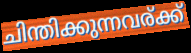
ചിന്തിക്കുന്നവര്ക്ക്